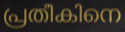
പ്രതീകിനെ